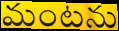
మంటను